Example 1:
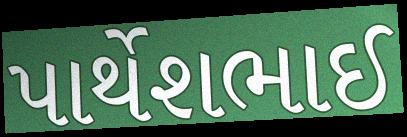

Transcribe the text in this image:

પાર્થેશભાઈ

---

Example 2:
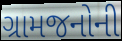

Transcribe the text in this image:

ગ્રામજનોની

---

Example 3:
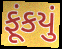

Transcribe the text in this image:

ફૂંકયું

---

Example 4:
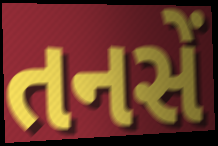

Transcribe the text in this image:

તનસેં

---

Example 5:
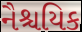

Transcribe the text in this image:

નૈશ્ચયિક